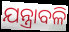
ଯନ୍ତ୍ରାବଳି